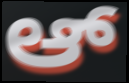
ಆ್